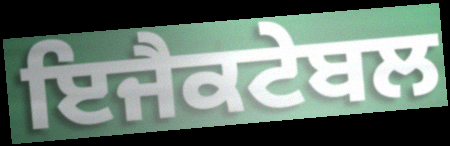
ਇਜੈਕਟੇਬਲ